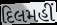
દિલમહીં